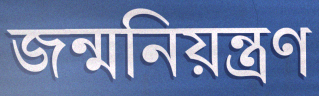
জন্মনিয়ন্ত্রণ